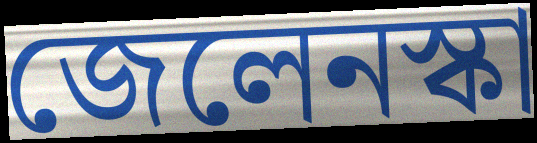
জেলেনস্কা